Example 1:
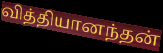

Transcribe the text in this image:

வித்தியானந்தன்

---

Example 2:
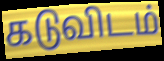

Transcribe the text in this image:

கடுவிடம்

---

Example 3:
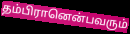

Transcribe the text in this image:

தம்பிரானென்பவரும்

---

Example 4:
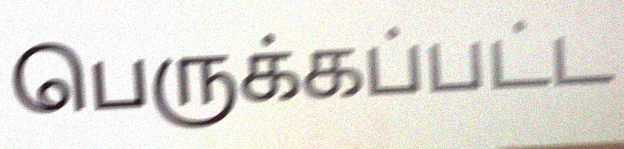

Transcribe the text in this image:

பெருக்கப்பட்ட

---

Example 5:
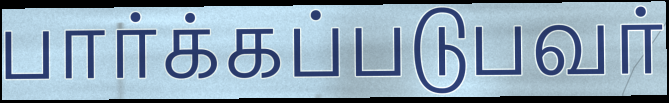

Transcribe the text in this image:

பார்க்கப்படுபவர்